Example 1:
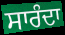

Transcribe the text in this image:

ਸਾਰੰਦਾ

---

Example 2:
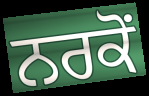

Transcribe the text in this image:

ਨਰਕੋਂ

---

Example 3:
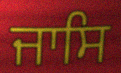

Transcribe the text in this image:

ਜਾਸਿ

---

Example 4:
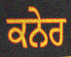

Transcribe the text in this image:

ਕਨੇਰ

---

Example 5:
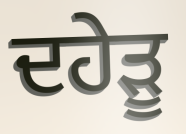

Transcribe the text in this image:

ਦਹੇੜੂ